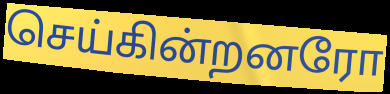
செய்கின்றனரோ